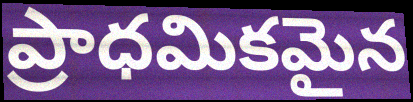
ప్రాధమికమైన